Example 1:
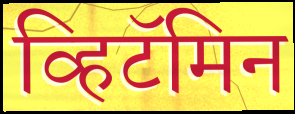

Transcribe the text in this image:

व्हिटॅमिन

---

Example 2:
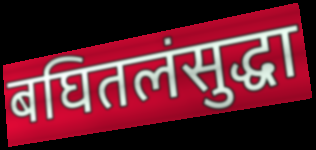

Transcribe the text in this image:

बघितलंसुद्धा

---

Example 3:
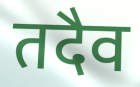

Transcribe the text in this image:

तदैव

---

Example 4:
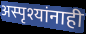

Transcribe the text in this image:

अस्पृश्यांनाही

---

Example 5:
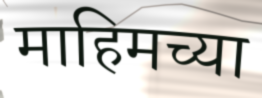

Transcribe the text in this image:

माहिमच्या